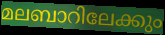
മലബാറിലേക്കും